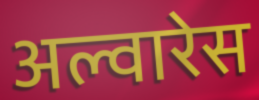
अल्वारेस